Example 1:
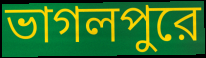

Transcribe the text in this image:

ভাগলপুরে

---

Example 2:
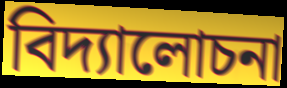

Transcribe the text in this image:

বিদ্যালোচনা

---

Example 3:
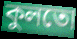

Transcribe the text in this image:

কুলতো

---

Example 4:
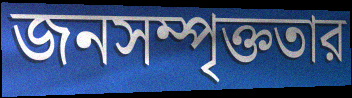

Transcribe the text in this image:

জনসম্পৃক্ততার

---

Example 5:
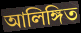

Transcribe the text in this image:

আলিঙ্গিত